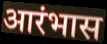
आरंभास